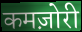
कमज़ोरी